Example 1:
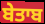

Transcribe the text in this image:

ਬੇਤਾਬ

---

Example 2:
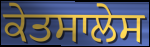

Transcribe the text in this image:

ਕੇਤਸਾਲੇਸ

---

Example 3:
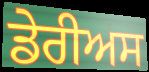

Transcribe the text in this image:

ਡੇਰੀਅਸ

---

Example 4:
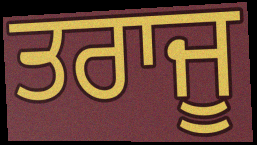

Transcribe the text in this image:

ਤਰਾਜੂ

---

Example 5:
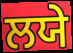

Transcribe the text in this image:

ਲਯੇ